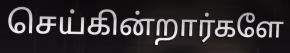
செய்கின்றார்களே